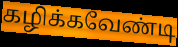
கழிக்கவேண்டி